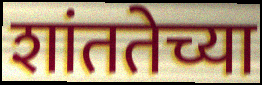
शांततेच्या